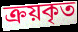
ক্রয়কৃত